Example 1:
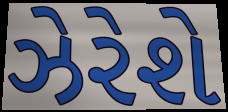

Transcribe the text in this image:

ઝેરેશે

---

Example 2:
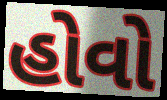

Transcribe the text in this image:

હોવો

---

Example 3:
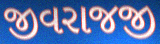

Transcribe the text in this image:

જીવરાજજી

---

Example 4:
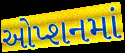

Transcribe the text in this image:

ઓપ્શનમાં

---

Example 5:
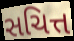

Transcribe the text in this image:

સચિત્ત